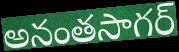
అనంతసాగర్